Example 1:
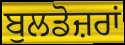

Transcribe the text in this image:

ਬੁਲਡੋਜ਼ਰਾਂ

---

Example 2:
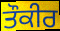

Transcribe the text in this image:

ਤੌਕੀਰ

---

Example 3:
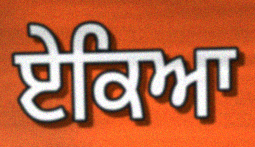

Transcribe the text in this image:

ਏਕਿਆ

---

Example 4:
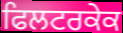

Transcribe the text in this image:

ਫਿਲਟਰਕੇਕ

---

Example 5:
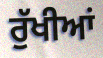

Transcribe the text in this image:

ਰੁੱਖੀਆਂ